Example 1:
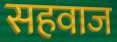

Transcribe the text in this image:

सहवाज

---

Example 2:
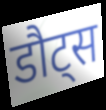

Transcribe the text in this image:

डौट्स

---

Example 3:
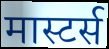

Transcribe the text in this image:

मास्टर्स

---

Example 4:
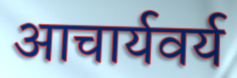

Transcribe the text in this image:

आचार्यवर्य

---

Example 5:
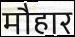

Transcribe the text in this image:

मौहार